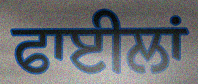
ਫਾਈਲਾਂ